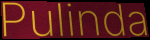
Pulinda